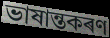
ভাষান্তকৰণ